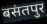
बसंतपुर